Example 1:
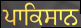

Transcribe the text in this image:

ਪਾਕਿਸਾਨ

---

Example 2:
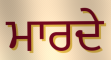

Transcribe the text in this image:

ਮਾਰਦੇ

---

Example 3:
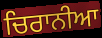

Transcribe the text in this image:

ਚਿਰਾਨੀਆ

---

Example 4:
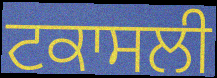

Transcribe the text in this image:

ਟਕਾਸਲੀ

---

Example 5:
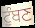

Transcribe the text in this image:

ਟੁੰਬਣ